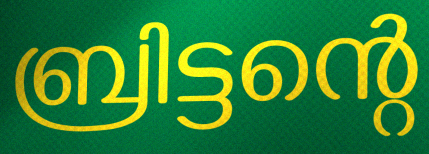
ബ്രിട്ടന്റെ